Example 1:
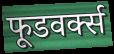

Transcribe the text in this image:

फूडवर्क्स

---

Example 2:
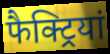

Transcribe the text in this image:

फैक्ट्रियां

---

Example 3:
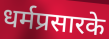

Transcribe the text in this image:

धर्मप्रसारके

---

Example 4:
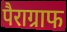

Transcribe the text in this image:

पैराग्राफ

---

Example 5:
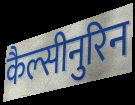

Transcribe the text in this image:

कैल्सीनुरिन